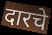
दारचे